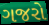
ગજરો